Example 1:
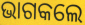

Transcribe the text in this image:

ଭାଗକଲେ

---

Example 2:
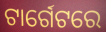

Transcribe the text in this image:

ଟାର୍ଗେଟରେ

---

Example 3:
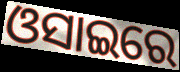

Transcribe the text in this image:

ଓସାଇରେ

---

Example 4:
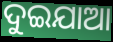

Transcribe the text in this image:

ଦୁଇଯାଆ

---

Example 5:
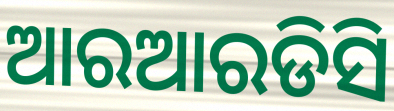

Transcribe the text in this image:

ଆରଆରଡିସି